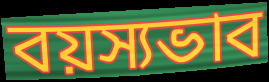
বয়স্যভাব